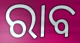
ରାବ